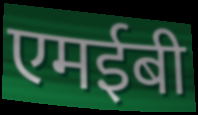
एमईबी